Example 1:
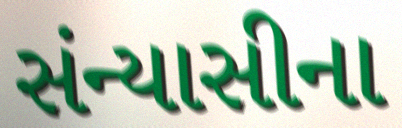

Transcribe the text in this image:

સંન્યાસીના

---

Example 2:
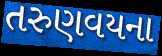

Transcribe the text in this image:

તરુણવયના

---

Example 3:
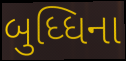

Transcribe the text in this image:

બુધ્ધિના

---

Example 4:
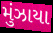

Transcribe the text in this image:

મુંઝાયા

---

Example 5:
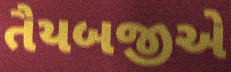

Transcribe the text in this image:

તૈયબજીએ